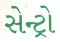
સેન્ટ્રો